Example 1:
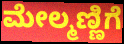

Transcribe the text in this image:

ಮೇಲ್ಮಣ್ಣಿಗೆ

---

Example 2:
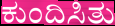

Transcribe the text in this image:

ಕುಂದಿಸಿತು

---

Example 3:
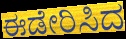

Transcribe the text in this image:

ಈಡೇರಿಸಿದ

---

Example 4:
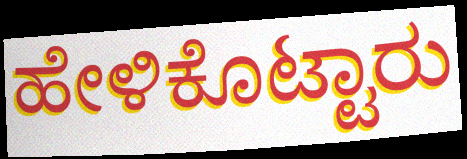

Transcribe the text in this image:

ಹೇಳಿಕೊಟ್ಟಾರು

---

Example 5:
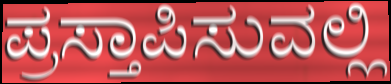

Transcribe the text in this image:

ಪ್ರಸ್ತಾಪಿಸುವಲ್ಲಿ